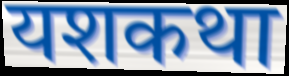
यशकथा